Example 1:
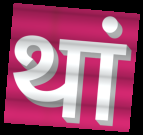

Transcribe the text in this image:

थां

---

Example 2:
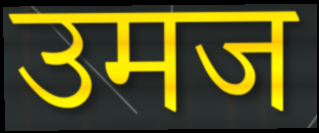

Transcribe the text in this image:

उमज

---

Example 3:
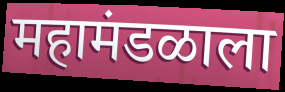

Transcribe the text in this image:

महामंडळाला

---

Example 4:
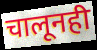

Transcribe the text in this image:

चालूनही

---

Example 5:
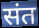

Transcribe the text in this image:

संत